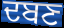
ਦਬਣ